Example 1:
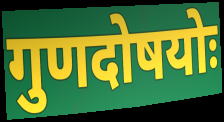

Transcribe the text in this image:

गुणदोषयोः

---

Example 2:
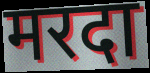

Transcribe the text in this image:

मरदा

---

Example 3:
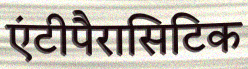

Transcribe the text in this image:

एंटीपैरासिटिक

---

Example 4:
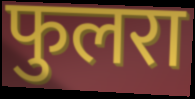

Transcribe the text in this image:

फुलरा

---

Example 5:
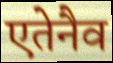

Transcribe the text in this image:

एतेनैव